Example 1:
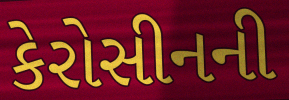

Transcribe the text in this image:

કેરોસીનની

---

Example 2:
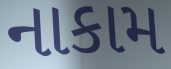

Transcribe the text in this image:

નાકામ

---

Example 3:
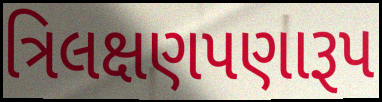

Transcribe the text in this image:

ત્રિલક્ષણપણારૂપ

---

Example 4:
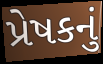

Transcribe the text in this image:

પ્રેષકનું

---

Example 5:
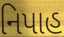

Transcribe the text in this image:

નિપાહ